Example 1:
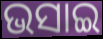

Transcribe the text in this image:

ଭସାଇ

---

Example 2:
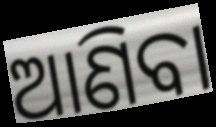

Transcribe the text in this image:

ଆଣିବା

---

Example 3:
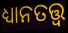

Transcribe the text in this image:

ଧ୍ୟାନତତ୍ତ୍ୱ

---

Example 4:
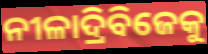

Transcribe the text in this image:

ନୀଳାଦ୍ରିବିଜେକୁ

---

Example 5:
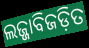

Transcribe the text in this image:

ଲଜ୍ଜାବିଜଡ଼ିତ